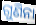
ଗୁଣିନା